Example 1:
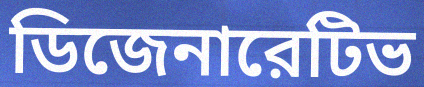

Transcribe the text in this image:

ডিজেনারেটিভ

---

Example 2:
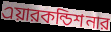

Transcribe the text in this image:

এয়ারকন্ডিশনার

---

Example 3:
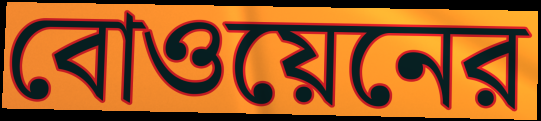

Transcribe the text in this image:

বোওয়েনের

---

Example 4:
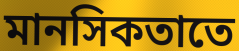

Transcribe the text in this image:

মানসিকতাতে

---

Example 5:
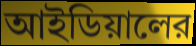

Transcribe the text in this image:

আইডিয়ালের